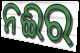
ନଈର